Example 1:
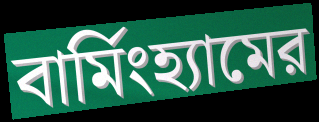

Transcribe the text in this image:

বার্মিংহ্যামের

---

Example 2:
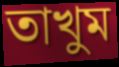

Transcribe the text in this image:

তাখুম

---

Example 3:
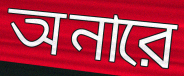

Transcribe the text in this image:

অনারে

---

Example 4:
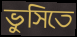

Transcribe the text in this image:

ভুসিতে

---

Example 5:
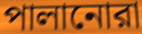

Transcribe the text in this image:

পালানোরা